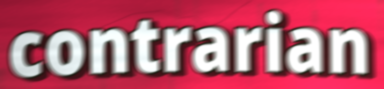
contrarian